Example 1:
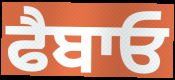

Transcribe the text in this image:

ਫੈਬਾਓ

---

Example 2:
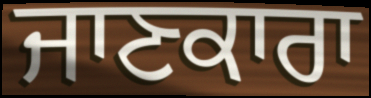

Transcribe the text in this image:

ਜਾਣਕਾਰਾ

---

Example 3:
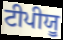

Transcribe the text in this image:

ਟੀਪੀਯੂ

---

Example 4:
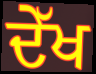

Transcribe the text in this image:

ਦੇੱਖ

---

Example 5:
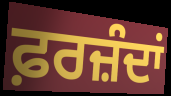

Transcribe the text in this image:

ਫ਼ਰਜ਼ੰਦਾਂ